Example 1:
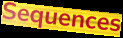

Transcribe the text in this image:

Sequences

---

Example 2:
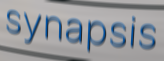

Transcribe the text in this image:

synapsis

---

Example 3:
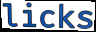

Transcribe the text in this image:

licks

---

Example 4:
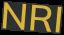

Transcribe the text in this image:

NRI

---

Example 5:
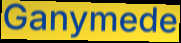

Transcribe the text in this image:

Ganymede